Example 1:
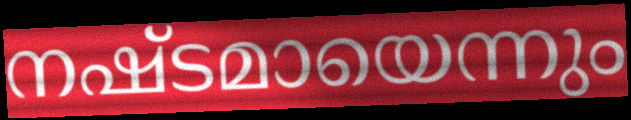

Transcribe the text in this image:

നഷ്ടമായെന്നും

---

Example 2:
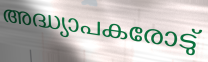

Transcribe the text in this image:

അദ്ധ്യാപകരോടു്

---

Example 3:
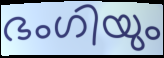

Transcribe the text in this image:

ഭംഗിയും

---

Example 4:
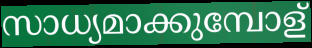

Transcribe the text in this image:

സാധ്യമാക്കുമ്പോള്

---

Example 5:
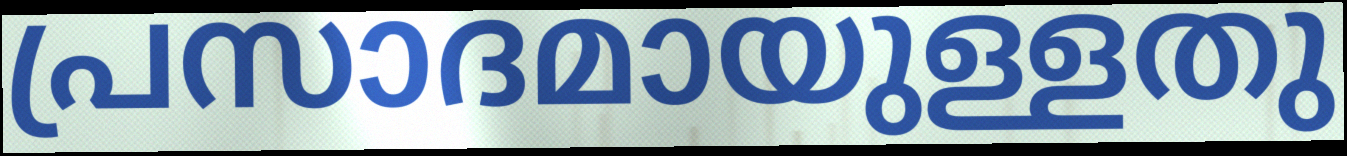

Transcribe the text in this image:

പ്രസാദമായുള്ളതു